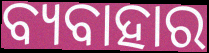
ବ୍ୟବାହାର